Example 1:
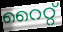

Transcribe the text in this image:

റൈറ്റ്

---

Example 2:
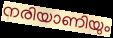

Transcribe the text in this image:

നരിയാണിയും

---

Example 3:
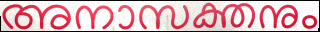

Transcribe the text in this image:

അനാസക്തനും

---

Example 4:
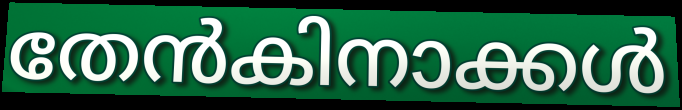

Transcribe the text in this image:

തേൻകിനാക്കൾ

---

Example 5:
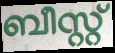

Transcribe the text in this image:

ബീസ്റ്റ്